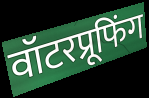
वॉटरप्रूफिंग